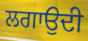
ਲਗਾਉਦੀ